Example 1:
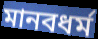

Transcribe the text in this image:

মানবধর্ম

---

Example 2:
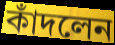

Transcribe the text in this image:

কাঁদলেন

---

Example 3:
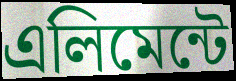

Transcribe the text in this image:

এলিমেন্টে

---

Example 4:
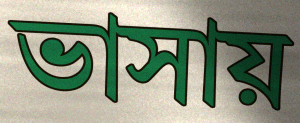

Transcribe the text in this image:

ভাসায়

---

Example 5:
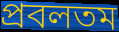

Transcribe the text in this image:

প্রবলতম